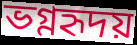
ভগ্নহৃদয়